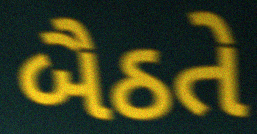
બૈઠતે